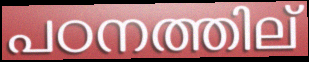
പഠനത്തില്